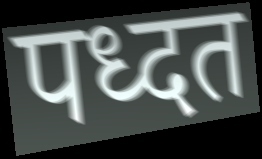
पध्दत